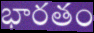
భారతం